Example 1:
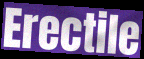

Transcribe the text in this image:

Erectile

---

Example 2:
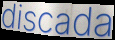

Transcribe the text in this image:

discada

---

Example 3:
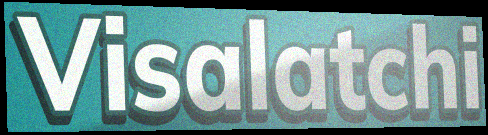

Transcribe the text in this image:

Visalatchi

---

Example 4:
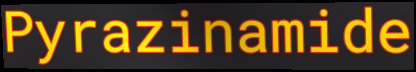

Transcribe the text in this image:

Pyrazinamide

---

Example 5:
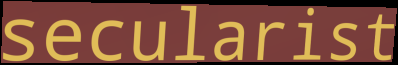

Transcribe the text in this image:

secularist